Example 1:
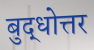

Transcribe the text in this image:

बुद्धोत्तर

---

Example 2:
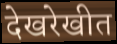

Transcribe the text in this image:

देखरेखीत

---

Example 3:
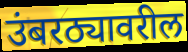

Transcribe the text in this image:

उंबरठ्यावरील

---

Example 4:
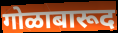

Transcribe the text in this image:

गोळाबारूद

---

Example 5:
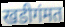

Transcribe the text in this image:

खडीगंमत